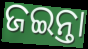
ଜଇନ୍ତା